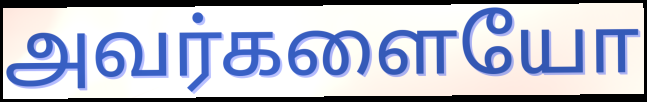
அவர்களையோ